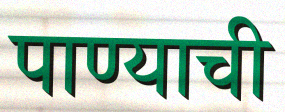
पाण्याची